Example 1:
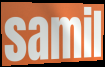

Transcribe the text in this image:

samil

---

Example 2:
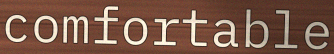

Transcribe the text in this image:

comfortable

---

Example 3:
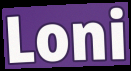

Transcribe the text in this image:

Loni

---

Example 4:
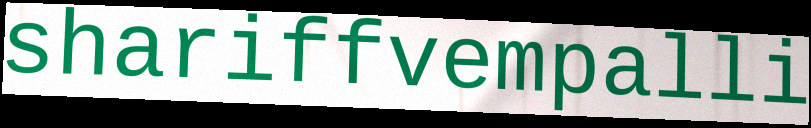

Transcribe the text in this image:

shariffvempalli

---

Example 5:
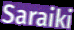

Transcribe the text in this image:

Saraiki